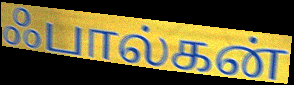
ஃபால்கன்